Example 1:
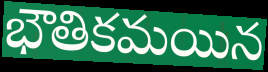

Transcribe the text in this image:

భౌతికమయిన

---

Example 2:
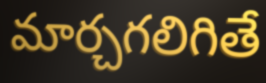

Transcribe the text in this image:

మార్చగలిగితే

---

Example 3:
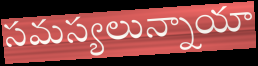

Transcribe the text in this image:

సమస్యలున్నాయా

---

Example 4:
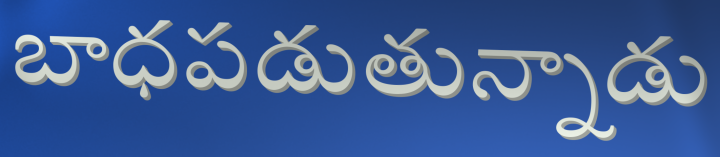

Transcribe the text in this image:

బాధపడుతున్నాడు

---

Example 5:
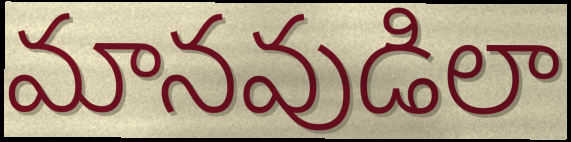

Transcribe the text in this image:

మానవుడిలా